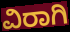
ವಿರಾಗಿ